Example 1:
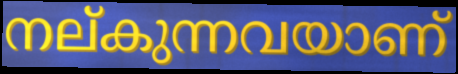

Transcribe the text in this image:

നല്കുന്നവയാണ്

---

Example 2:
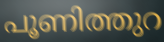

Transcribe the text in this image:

പൂണിത്തുറ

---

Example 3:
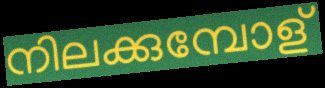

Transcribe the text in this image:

നിലക്കുമ്പോള്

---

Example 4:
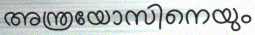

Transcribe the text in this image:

അന്ത്രയോസിനെയും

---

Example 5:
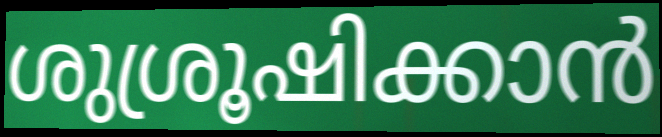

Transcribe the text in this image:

ശുശ്രൂഷിക്കാൻ